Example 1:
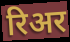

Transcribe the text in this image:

रिअर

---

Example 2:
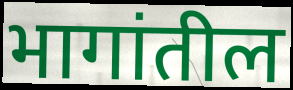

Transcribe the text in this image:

भागांतील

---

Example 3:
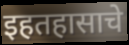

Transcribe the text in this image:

इहतहासाचे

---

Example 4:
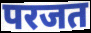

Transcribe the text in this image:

परजत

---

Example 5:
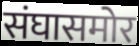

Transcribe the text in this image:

संघासमोर